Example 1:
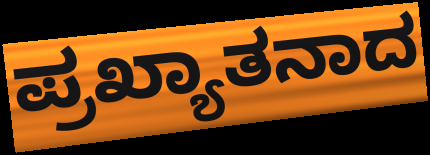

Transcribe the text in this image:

ಪ್ರಖ್ಯಾತನಾದ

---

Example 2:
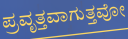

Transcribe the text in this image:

ಪ್ರವೃತ್ತವಾಗುತ್ತವೋ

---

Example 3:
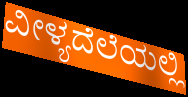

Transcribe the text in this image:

ವೀಳ್ಯದೆಲೆಯಲ್ಲಿ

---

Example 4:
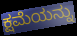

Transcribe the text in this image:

ಕ್ಷಮೆಯನ್ನು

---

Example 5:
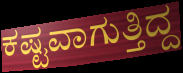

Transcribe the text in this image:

ಕಷ್ಟವಾಗುತ್ತಿದ್ದ